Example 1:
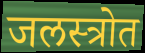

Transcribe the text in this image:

जलस्त्रोत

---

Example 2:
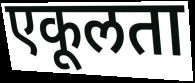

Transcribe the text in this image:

एकूलता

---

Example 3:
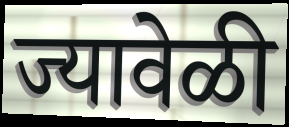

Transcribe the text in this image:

ज्यावेळी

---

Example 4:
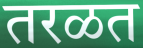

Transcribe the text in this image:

तरळत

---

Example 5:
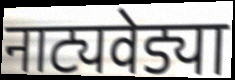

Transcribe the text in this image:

नाट्यवेड्या